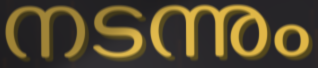
നടന്നും